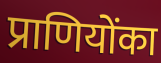
प्राणियोंका